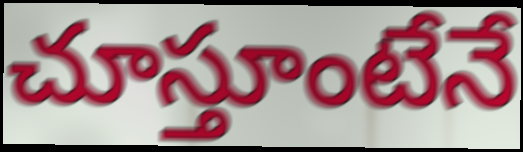
చూస్తూంటేనే